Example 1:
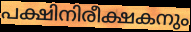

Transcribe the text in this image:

പക്ഷിനിരീക്ഷകനും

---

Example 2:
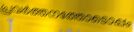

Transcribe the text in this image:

പ്രവർത്തനത്തോടൊപ്പം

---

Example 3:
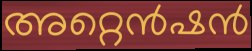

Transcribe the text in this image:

അറ്റെൻഷൻ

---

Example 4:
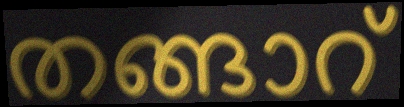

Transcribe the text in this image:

തങ്ങാറ്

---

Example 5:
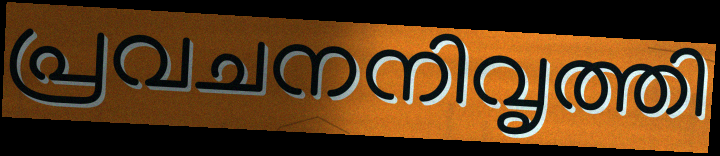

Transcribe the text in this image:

പ്രവചനനിവൃത്തി